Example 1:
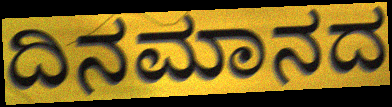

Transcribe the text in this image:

ದಿನಮಾನದ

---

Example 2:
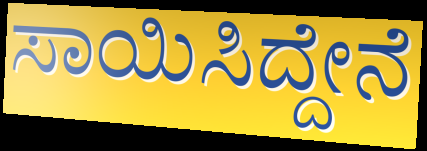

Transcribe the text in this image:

ಸಾಯಿಸಿದ್ದೇನೆ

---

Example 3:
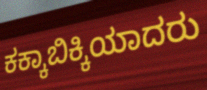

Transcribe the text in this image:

ಕಕ್ಕಾಬಿಕ್ಕಿಯಾದರು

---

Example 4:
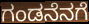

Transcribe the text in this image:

ಗಂಡನೆನಗೆ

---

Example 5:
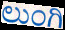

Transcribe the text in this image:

ಲುಂಗಿ